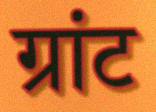
ग्रांट